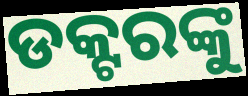
ଡକ୍ଟରଙ୍କୁ